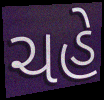
ચહે